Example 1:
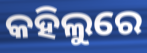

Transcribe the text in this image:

କହିଲୁରେ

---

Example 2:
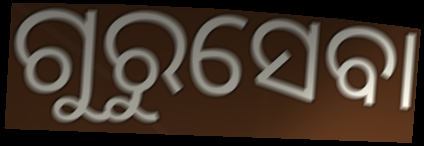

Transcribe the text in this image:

ଗୁରୁସେବା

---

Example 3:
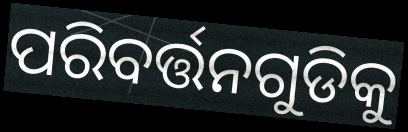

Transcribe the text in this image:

ପରିବର୍ତ୍ତନଗୁଡିକୁ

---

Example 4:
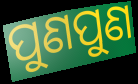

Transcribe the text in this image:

ପୁଣପୁଣ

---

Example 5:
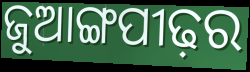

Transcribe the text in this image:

ଜୁଆଙ୍ଗପୀଢ଼ର